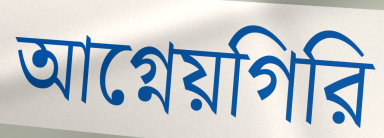
আগ্নেয়গিরি